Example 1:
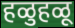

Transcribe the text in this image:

हळुहळू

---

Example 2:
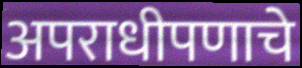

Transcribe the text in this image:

अपराधीपणाचे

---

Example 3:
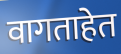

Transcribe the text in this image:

वागताहेत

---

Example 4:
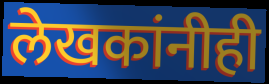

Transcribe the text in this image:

लेखकांनीही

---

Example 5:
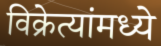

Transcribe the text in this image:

विक्रेत्यांमध्ये